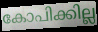
കോപിക്കില്ല